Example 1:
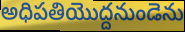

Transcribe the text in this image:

అధిపతియొద్దనుండెను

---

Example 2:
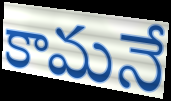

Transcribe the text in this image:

కామనే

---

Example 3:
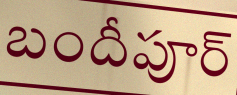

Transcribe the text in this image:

బందీపూర్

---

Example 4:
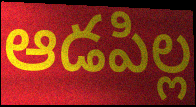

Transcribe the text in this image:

ఆడపిల్ల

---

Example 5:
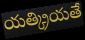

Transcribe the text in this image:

యత్క్రియతే